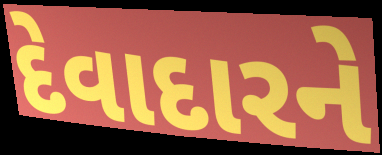
દેવાદારને